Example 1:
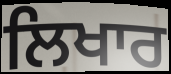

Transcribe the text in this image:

ਲਿਖਾਰ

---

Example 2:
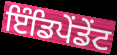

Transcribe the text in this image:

ਇੰਡਿਪੇਂਡੇਂਟ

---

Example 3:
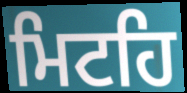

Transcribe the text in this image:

ਮਿਟਹਿ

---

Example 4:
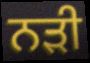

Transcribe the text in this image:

ਨੜੀ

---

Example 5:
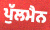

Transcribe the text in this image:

ਪੁੱਲਮੈਨ